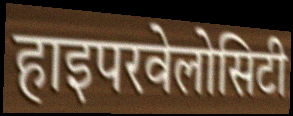
हाइपरवेलोसिटी